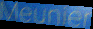
Meunier